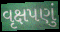
વૃક્ષપણું